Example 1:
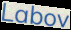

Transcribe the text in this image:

Labov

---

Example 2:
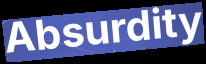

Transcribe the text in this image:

Absurdity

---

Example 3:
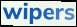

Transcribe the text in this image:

wipers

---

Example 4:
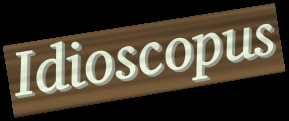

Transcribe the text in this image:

Idioscopus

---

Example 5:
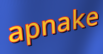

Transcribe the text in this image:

apnake